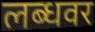
लब्धवर